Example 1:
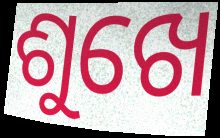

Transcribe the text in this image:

ଶୁଖେ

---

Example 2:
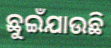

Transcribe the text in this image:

ଛୁଇଁଯାଉଛି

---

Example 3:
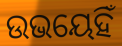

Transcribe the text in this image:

ଉଭୟେହିଁ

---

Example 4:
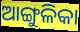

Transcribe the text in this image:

ଆଙ୍ଗୁଳିକା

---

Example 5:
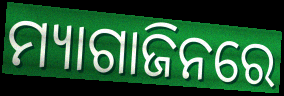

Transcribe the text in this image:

ମ୍ୟାଗାଜିନରେ